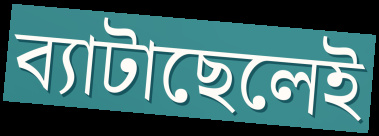
ব্যাটাছেলেই